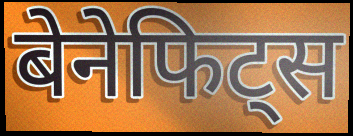
बेनेफिट्स